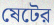
ষেটের